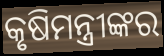
କୃଷିମନ୍ତ୍ରୀଙ୍କର